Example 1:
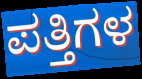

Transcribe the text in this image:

ಪತ್ತಿಗಳ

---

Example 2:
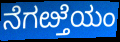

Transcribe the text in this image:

ನೆಗೞ್ತೆಯಂ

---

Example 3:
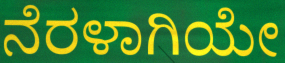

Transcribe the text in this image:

ನೆರಳಾಗಿಯೇ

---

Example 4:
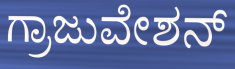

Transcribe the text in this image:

ಗ್ರಾಜುವೇಶನ್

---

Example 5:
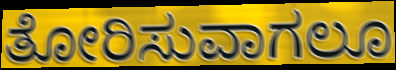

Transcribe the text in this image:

ತೋರಿಸುವಾಗಲೂ